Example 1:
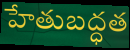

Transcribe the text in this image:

హేతుబద్ధత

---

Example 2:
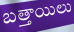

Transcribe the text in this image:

బత్తాయిలు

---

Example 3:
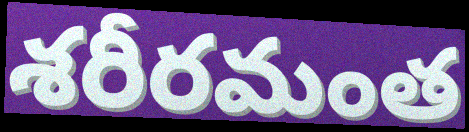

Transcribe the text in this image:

శరీరమంత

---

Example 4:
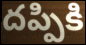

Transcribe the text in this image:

దప్పికి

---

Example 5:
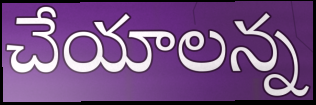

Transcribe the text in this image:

చేయాలన్న